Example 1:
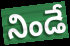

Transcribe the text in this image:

నిండే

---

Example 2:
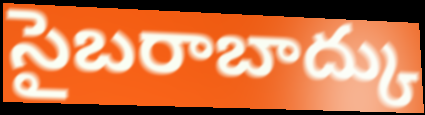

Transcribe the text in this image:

సైబరాబాద్కు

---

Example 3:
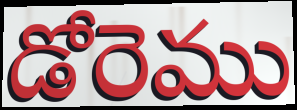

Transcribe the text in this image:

డోరెము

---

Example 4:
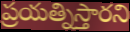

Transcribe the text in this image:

ప్రయత్నిస్తారని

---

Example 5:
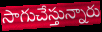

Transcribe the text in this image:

సాగుచేస్తున్నారు